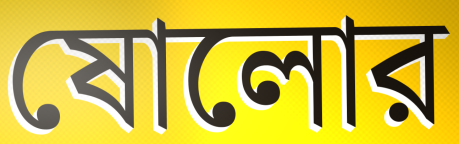
ষোলোর